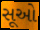
સૂઓ